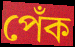
পেঁক